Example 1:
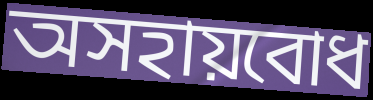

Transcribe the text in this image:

অসহায়বোধ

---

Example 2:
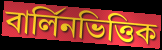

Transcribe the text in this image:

বার্লিনভিত্তিক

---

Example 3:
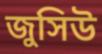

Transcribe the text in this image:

জুসিউ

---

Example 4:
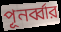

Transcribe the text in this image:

পূনর্ব্বার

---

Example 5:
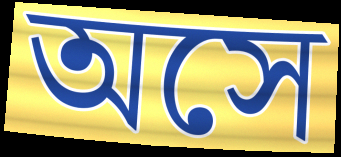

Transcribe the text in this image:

অসে